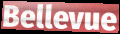
Bellevue